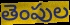
తెంపుల